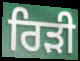
ਰਿੜੀ